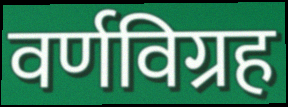
वर्णविग्रह